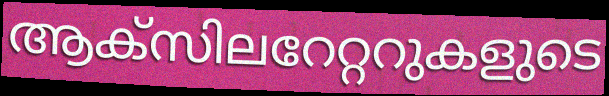
ആക്സിലറേറ്ററുകളുടെ